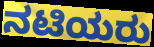
ನಟಿಯರು